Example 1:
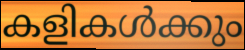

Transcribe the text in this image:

കളികൾക്കും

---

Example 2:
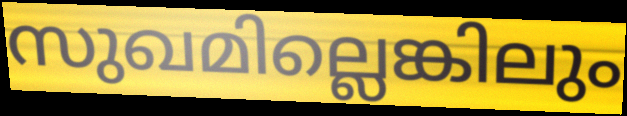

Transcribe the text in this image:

സുഖമില്ലെങ്കിലും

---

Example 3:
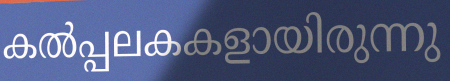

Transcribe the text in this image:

കൽപ്പലകകളായിരുന്നു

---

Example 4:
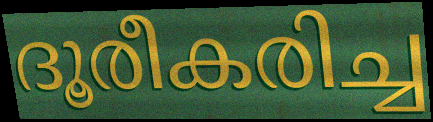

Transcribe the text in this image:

ദൂരീകരിച്ച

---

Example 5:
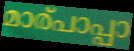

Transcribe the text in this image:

മാര്പാപ്പാ